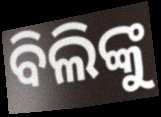
ବିଲିଙ୍କୁ